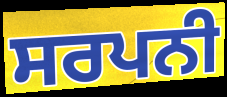
ਸਰਪਨੀ